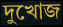
দুখোজ